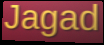
Jagad